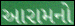
આરામનો